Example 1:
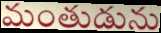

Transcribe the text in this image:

మంతుడును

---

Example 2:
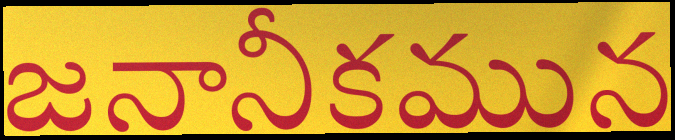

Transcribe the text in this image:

జనానీకమున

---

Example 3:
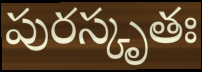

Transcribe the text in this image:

పురస్కృతః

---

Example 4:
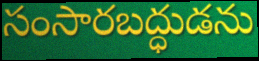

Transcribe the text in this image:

సంసారబద్ధుడను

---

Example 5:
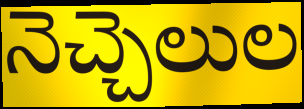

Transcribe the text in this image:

నెచ్చెలుల